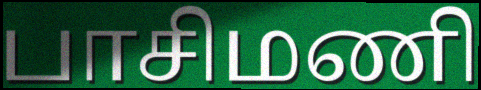
பாசிமணி